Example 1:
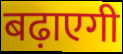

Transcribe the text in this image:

बढ़ाएगी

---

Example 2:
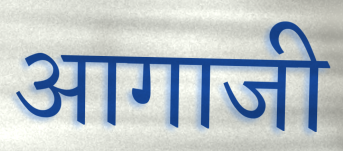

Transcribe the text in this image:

आगाजी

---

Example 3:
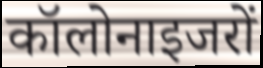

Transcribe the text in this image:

कॉलोनाइजरों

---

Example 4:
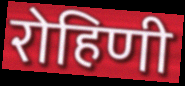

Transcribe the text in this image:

रोहिणी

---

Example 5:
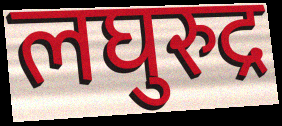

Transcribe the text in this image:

लघुरुद्र